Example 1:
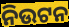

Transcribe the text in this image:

ନିଉଟନ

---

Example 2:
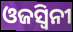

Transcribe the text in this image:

ଓଜସ୍ଵିନୀ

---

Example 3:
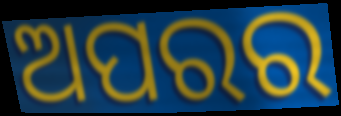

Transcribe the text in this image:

ଅପରର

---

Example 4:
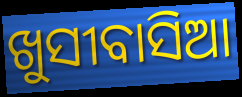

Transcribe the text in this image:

ଖୁସୀବାସିଆ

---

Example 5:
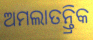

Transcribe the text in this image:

ଅମଲାତନ୍ତ୍ରିକ